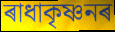
ৰাধাকৃষ্ণনৰ